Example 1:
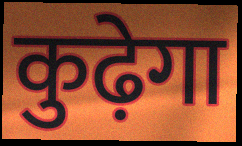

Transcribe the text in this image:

कुढ़ेगा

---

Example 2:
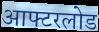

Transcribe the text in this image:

आफ्टरलोड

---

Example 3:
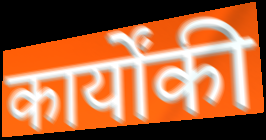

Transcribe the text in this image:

कार्योंकी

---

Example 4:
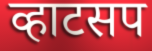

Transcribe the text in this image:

व्हाटसप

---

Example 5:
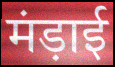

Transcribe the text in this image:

मंड़ाई